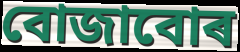
বোজাবোৰ